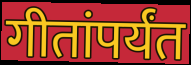
गीतांपर्यंत